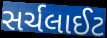
સર્ચલાઈટ